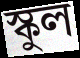
স্কুল